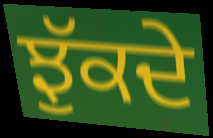
ਝੁੱਕਦੇ